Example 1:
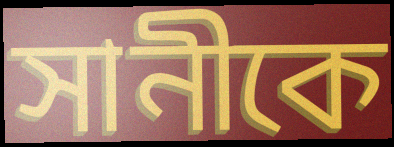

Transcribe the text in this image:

সানীকে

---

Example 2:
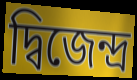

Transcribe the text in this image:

দ্বিজেন্দ্র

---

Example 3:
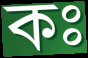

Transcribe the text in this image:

কঃ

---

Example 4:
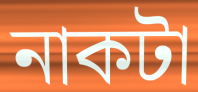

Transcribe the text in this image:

নাকটা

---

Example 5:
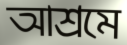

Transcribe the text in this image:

আশ্রমে